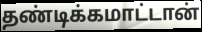
தண்டிக்கமாட்டான்